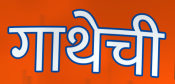
गाथेची